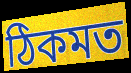
ঠিকমত